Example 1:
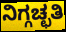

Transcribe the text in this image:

ನಿಗ್ಗಚ್ಛತಿ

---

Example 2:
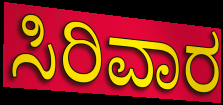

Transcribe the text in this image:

ಸಿರಿವಾರ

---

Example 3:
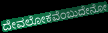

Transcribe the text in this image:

ದೇವಲೋಕವೆಂಬುದೇನೋ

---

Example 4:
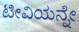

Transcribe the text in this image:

ಟೀವಿಯನ್ನೇ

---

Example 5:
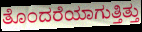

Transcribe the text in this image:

ತೊಂದರೆಯಾಗುತ್ತಿತ್ತು